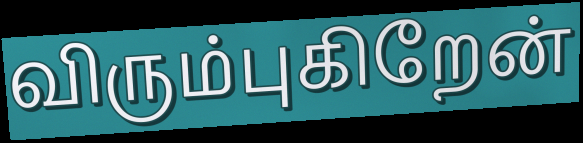
விரும்புகிறேன்